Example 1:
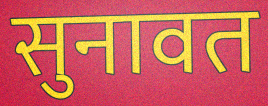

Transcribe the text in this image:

सुनावत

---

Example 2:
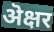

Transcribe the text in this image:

ऄक्षर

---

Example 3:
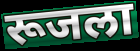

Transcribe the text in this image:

रूजला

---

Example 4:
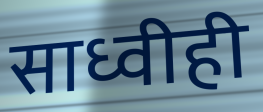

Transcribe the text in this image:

साध्वीही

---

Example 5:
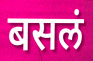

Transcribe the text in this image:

बसलं